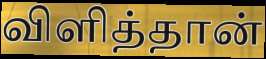
விளித்தான்